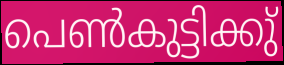
പെൺകുട്ടിക്കു്